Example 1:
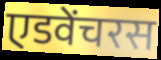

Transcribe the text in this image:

एडवेंचरस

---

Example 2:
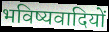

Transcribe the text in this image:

भविष्यवादियों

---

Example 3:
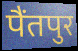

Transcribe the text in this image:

पैंतपुर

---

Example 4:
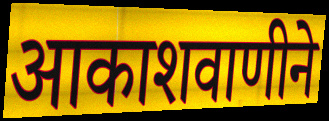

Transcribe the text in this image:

आकाशवाणीने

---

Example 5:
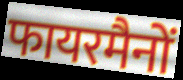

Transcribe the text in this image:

फायरमैनों